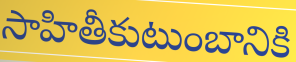
సాహితీకుటుంబానికి